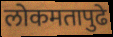
लोकमतापुढे